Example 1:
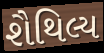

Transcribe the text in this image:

શૈથિલ્ય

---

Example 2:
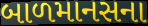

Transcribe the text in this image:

બાળમાનસના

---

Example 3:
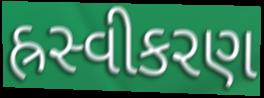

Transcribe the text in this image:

હ્રસ્વીકરણ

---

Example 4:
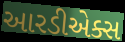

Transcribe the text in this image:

આરડીએક્સ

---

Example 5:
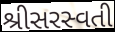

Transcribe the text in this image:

શ્રીસરસ્વતી